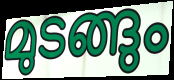
മുടങ്ങും